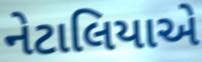
નેટાલિયાએ